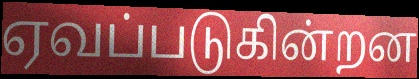
ஏவப்படுகின்றன